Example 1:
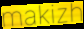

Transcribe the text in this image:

makizh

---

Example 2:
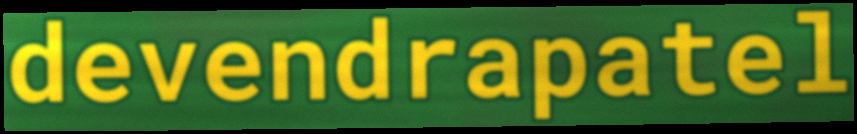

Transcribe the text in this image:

devendrapatel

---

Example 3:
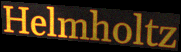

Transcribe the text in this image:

Helmholtz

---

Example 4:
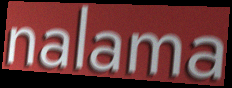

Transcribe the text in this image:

nalama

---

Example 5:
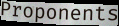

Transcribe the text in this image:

Proponents